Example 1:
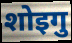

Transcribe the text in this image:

शोइगु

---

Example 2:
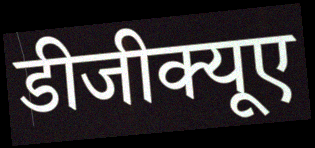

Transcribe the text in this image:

डीजीक्यूए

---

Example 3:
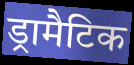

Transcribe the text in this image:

ड्रामैटिक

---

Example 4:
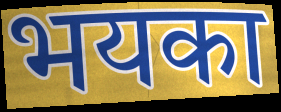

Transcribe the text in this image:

भयका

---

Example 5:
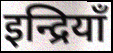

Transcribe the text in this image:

इन्द्रियाँ